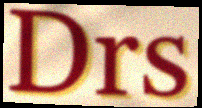
Drs